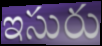
ఇసురు